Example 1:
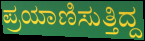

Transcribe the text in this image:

ಪ್ರಯಾಣಿಸುತ್ತಿದ್ದ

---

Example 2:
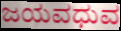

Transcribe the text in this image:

ಜಯವಧುವ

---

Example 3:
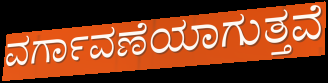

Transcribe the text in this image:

ವರ್ಗಾವಣೆಯಾಗುತ್ತವೆ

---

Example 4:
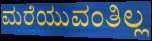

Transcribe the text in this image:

ಮರೆಯುವಂತಿಲ್ಲ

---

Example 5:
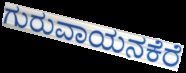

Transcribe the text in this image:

ಗುರುವಾಯನಕೆರೆ